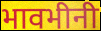
भावभीनी